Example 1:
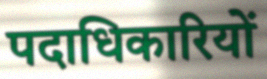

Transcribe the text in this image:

पदाधिकारियों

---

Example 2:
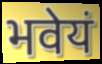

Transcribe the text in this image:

भवेयं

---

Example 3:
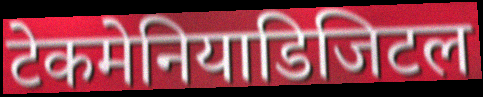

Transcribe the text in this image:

टेकमेनियाडिजिटल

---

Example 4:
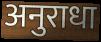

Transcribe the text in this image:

अनुराधा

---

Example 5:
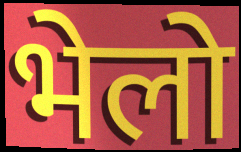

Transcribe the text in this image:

भेलो